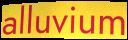
alluvium